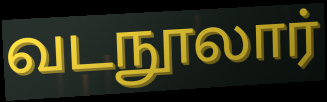
வடநூலார்